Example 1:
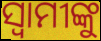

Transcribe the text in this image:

ସ୍ବାମୀଙ୍କୁ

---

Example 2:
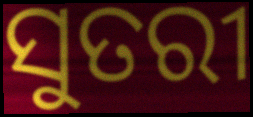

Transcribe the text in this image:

ସୁତରୀ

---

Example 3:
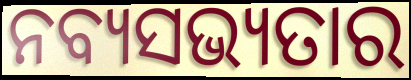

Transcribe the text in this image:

ନବ୍ୟସଭ୍ୟତାର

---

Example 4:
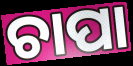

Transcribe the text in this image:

ଚାପା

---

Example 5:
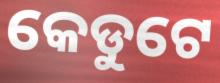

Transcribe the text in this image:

କେଡୁଟେ